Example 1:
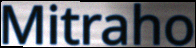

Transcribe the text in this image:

Mitraho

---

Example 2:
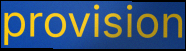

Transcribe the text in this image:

provision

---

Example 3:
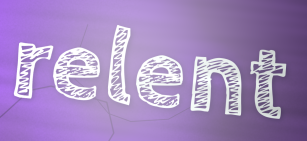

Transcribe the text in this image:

relent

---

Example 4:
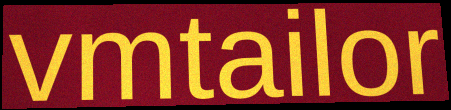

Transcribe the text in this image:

vmtailor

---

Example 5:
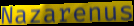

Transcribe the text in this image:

Nazarenus